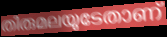
തിരുമലയുടേതാണ്